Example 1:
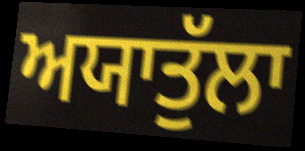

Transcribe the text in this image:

ਅਯਾਤੁੱਲਾ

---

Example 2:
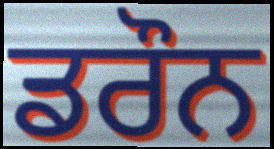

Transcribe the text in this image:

ਡਰੌਨ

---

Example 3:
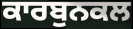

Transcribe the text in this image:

ਕਾਰਬੁਨਕਲ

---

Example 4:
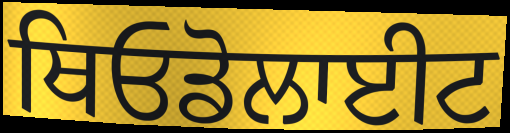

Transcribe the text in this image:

ਥਿਓਡੋਲਾਈਟ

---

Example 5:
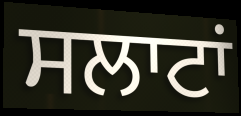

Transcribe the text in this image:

ਸਲਾਟਾਂ